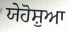
ਯੇਹੋਸ਼ੁਆ